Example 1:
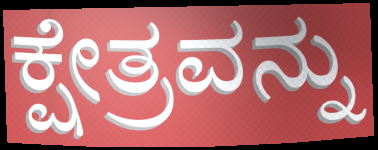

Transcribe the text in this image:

ಕ್ಷೇತ್ರವನ್ನು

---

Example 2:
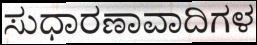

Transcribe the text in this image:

ಸುಧಾರಣಾವಾದಿಗಳ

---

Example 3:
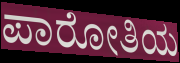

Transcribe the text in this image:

ಪಾರೋತಿಯ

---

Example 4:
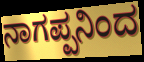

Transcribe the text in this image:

ನಾಗಪ್ಪನಿಂದ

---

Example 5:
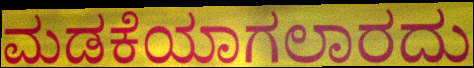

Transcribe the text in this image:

ಮಡಕೆಯಾಗಲಾರದು